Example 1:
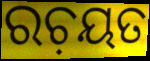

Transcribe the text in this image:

ରଚ଼ୟତ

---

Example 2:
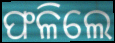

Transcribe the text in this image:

ଫଳିଲେ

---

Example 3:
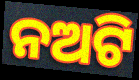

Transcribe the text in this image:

ନଅଟି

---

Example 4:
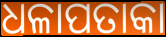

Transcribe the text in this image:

ଧଳାପତାକା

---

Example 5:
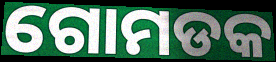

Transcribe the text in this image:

ଗୋମଡକ